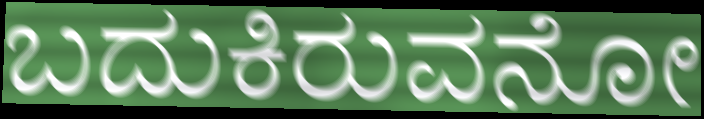
ಬದುಕಿರುವನೋ